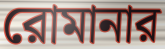
রোমানার